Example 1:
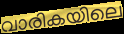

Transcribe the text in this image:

വാരികയിലെ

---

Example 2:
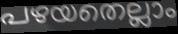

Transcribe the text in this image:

പഴയതെല്ലാം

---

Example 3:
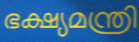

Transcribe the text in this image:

ഭക്ഷ്യമന്ത്രി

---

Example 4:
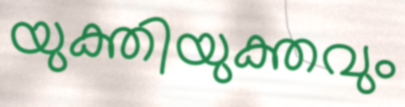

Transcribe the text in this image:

യുക്തിയുക്തവും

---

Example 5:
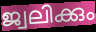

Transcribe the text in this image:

ജ്വലിക്കും